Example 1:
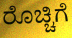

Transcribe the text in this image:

ರೊಚ್ಚಿಗೆ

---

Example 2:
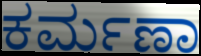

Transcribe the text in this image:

ಕರ್ಮಣಾ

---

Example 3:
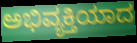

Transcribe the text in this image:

ಅಭಿವ್ಯಕ್ತಿಯಾದ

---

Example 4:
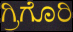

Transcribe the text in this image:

ಗ್ರಿಗೊರಿ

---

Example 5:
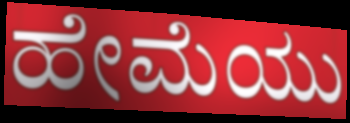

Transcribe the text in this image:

ಹೇಮೆಯು